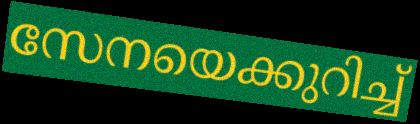
സേനയെക്കുറിച്ച്